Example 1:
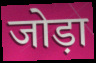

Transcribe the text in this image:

जोड़ा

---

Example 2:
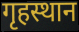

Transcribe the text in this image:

गृहस्थान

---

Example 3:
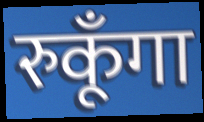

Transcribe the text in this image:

रुकूँगा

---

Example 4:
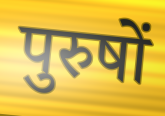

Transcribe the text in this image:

पुरुषों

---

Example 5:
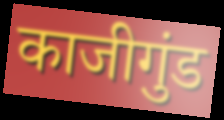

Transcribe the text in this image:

काजीगुंड